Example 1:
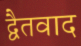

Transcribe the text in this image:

द्वैतवाद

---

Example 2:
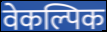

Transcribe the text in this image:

वेकल्पिक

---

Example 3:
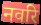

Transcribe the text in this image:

नवरि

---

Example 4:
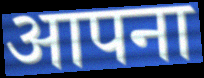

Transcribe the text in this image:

आपना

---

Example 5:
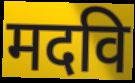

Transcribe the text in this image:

मदवि